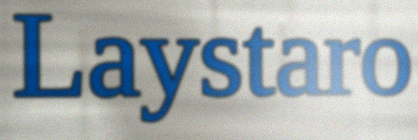
Laystaro